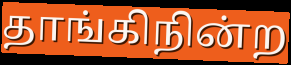
தாங்கிநின்ற